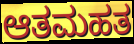
ಆತಮಹತ